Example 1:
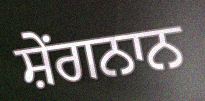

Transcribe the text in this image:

ਸ਼ੇਂਗਨਾਨ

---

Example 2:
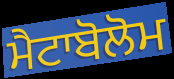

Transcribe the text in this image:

ਮੈਟਾਬੋਲੋਮ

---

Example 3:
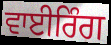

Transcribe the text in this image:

ਵਾਈਰਿੰਗ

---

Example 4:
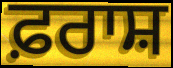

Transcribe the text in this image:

ਫ਼ਰਾਸ਼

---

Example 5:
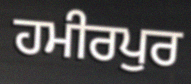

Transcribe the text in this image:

ਹਮੀਰਪੁਰ